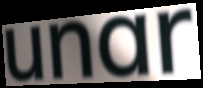
unar